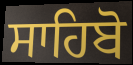
ਸਾਹਿਬੋ